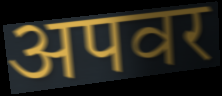
अपवर